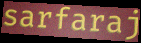
sarfaraj